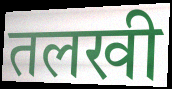
तलखी